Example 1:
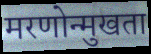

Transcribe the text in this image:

मरणोन्मुखता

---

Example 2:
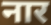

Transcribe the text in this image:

नार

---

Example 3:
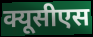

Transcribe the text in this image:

क्यूसीएस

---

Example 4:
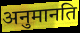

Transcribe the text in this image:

अनुमानति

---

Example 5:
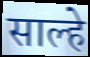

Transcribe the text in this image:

साल्हे